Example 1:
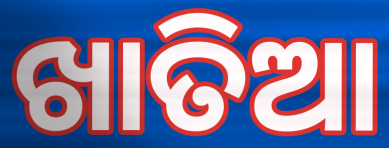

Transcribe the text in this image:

ଖାତିଆ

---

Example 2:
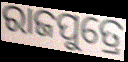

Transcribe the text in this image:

ରାଜପୁତ୍ରେ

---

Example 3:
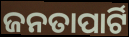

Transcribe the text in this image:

ଜନତାପାର୍ଟି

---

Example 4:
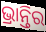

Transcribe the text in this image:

ଭ୍ରାନ୍ତିର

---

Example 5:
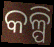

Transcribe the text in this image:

କଳ୍ପି